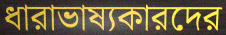
ধারাভাষ্যকারদের